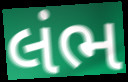
લંભ